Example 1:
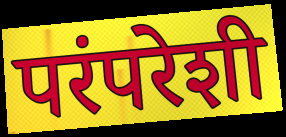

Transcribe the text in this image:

परंपरेशी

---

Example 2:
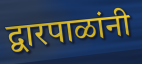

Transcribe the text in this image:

द्वारपाळांनी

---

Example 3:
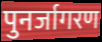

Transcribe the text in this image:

पुनर्जागरण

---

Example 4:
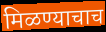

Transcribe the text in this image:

मिळण्याचाच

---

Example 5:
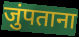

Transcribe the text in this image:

जुंपताना